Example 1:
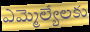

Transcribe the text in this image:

ఎమ్మెల్యేలకు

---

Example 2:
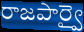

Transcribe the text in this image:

రాజపార్వై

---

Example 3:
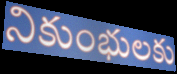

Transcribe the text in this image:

నికుంభులకు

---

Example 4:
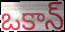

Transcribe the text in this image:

ఒకాన్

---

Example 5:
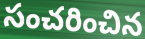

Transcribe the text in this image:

సంచరించిన